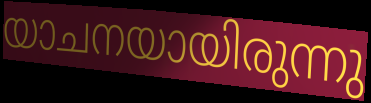
യാചനയായിരുന്നു